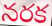
నరక